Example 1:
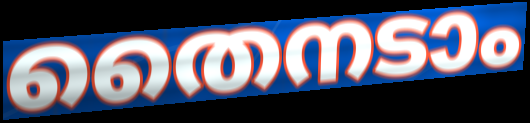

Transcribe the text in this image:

തൈനടാം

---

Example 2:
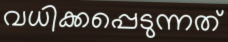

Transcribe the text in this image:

വധിക്കപ്പെടുന്നത്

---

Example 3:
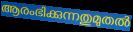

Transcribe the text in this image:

ആരംഭിക്കുന്നതുമുതൽ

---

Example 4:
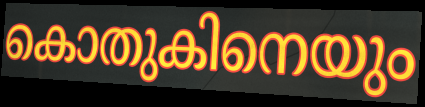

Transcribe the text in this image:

കൊതുകിനെയും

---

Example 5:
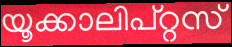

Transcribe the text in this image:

യൂക്കാലിപ്റ്റസ്